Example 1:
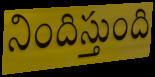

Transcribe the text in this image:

నిందిస్తుంది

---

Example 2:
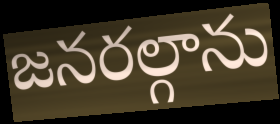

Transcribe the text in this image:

జనరల్గాను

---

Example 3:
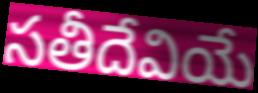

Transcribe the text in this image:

సతీదేవియే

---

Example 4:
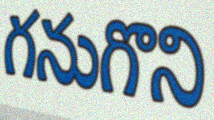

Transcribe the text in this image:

గనుగొని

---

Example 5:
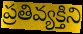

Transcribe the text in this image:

ప్రతివ్యక్తిని